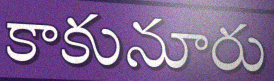
కాకునూరు